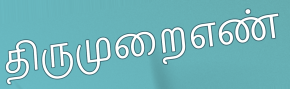
திருமுறைஎண்